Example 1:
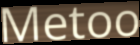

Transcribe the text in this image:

Metoo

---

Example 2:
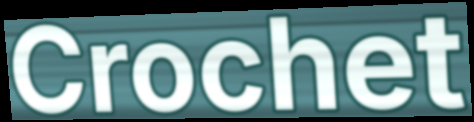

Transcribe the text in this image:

Crochet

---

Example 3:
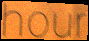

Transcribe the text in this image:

hour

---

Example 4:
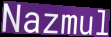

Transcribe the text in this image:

Nazmul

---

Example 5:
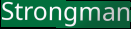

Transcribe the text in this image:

Strongman